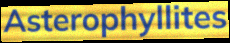
Asterophyllites